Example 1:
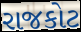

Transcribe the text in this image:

રાજકોટ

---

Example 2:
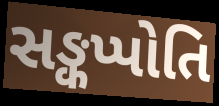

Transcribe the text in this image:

સઙ્કપ્પોતિ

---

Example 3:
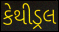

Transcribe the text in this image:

કેથીડ્રલ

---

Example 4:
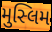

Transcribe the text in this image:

મુસ્લિમ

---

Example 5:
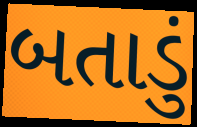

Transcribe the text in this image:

બતાડું